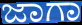
ಜಾಗಾ